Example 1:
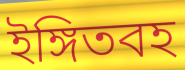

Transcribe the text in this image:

ইঙ্গিতবহ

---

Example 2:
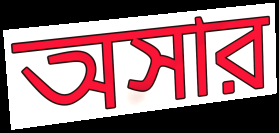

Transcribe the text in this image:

অসার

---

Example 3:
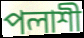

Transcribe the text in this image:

পলাশী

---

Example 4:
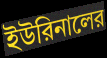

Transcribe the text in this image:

ইউরিনালের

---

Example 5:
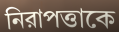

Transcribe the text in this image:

নিরাপত্তাকে